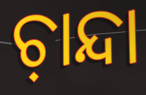
ଚ଼ାନ୍ଦା